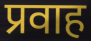
प्रवाह